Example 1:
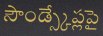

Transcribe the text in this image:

సౌండ్స్కేప్లపై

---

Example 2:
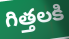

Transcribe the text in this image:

గిత్తలకి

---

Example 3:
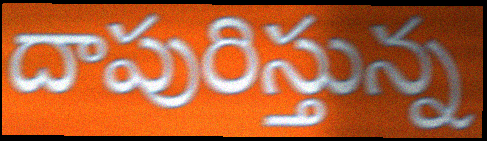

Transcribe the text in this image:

దాపురిస్తున్న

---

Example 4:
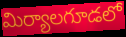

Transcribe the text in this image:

మిర్యాలగూడలో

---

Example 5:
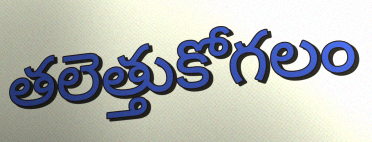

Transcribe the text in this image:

తలెత్తుకోగలం